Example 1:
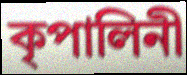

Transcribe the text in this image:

কৃপালিনী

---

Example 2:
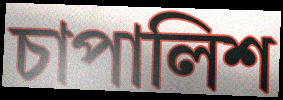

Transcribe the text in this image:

চাপালিশ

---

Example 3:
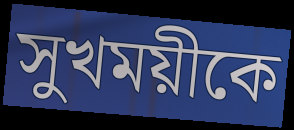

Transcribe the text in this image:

সুখময়ীকে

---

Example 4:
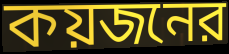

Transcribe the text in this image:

কয়জনের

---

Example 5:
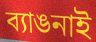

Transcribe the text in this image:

ব্যাঙনাই